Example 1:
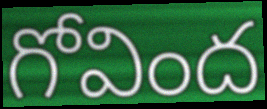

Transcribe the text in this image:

గోవింద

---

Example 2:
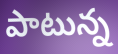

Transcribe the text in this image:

పాటున్న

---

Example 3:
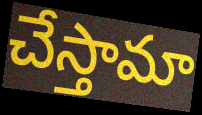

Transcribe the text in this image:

చేస్తామా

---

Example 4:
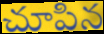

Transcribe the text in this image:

చూపిన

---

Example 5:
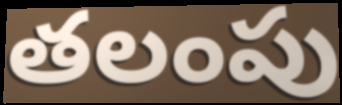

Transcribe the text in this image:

తలంపు